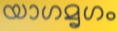
യാഗമൃഗം